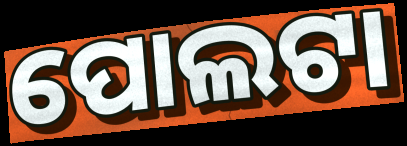
ପୋଲଟା